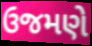
ઉજમણે